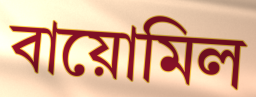
বায়োমিল